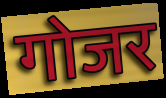
गोजर